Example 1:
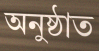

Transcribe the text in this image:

অনুষ্ঠাত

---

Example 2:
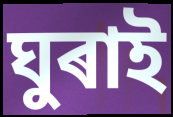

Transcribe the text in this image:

ঘুৰাই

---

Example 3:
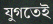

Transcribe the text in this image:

যুগতেই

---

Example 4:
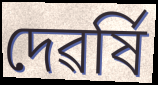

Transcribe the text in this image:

দেৱৰ্ষি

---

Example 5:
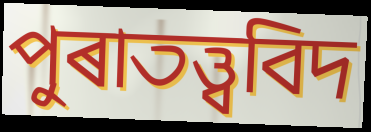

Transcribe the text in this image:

পুৰাতত্ত্ববিদ